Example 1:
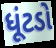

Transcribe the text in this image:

ધૂંટડો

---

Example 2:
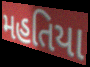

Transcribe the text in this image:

મહતિયા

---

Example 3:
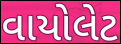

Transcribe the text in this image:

વાયોલેટ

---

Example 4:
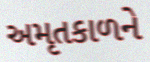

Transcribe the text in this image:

અમૃતકાળને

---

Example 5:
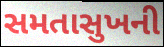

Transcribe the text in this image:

સમતાસુખની